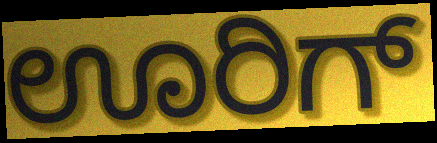
ಊರಿಗ್